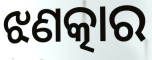
ଝଣତ୍କାର